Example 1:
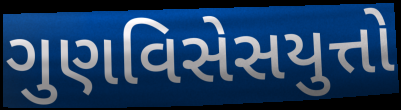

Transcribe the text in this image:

ગુણવિસેસયુત્તો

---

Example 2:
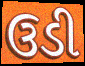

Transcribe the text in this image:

ઉડી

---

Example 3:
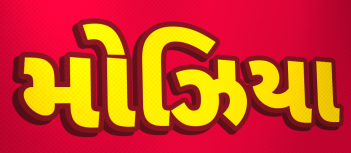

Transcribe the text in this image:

મોઝિયા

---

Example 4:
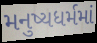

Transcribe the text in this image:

મનુષ્યધર્મમાં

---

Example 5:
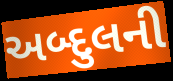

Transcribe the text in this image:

અબ્દુલની